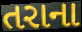
તરાના